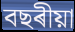
বছৰীয়া